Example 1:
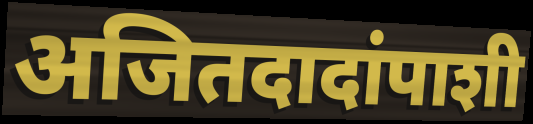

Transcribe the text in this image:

अजितदादांपाशी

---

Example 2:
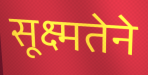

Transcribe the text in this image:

सूक्ष्मतेने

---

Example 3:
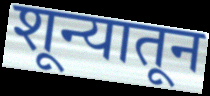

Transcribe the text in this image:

शून्यातून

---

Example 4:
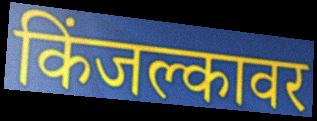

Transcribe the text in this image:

किंजल्कावर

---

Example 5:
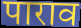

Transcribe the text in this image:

पाराव